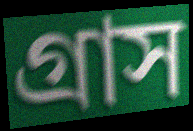
গ্ৰাস